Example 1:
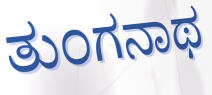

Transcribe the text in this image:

ತುಂಗನಾಥ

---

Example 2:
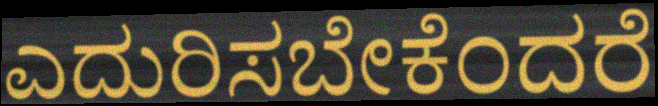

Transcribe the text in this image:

ಎದುರಿಸಬೇಕೆಂದರೆ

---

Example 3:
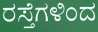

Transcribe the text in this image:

ರಸ್ತೆಗಳಿಂದ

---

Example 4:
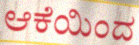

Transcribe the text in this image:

ಆಕೆಯಿಂದ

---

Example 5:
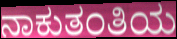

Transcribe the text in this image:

ನಾಕುತಂತಿಯ